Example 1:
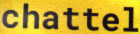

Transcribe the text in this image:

chattel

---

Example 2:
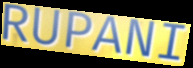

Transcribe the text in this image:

RUPANI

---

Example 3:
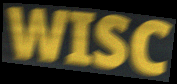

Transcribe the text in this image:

WISC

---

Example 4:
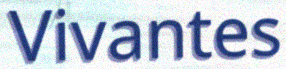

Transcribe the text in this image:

Vivantes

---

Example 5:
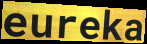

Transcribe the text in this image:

eureka